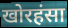
खोरहंसा